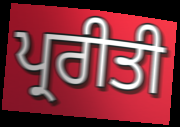
ਪ੍ਰਰੀਤੀ